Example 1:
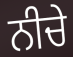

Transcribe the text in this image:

ਨੀਚੇ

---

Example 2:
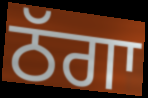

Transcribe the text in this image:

ਠੱਗਾ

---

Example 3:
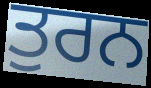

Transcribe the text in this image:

ਤੁਰਨ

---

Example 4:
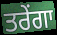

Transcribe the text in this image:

ਤਰੇਂਗਾ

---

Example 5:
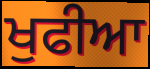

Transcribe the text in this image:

ਖੁਫੀਆ